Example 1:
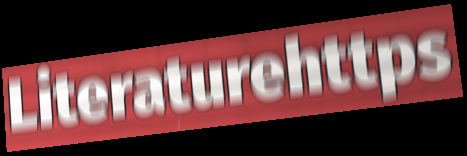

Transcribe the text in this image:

Literaturehttps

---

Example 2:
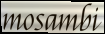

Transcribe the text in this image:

mosambi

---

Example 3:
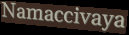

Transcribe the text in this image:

Namaccivaya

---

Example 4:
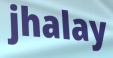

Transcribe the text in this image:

jhalay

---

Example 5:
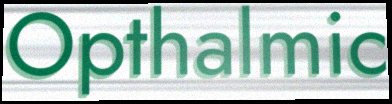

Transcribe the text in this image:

Opthalmic